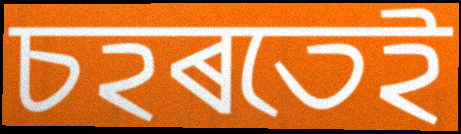
চহৰতেই